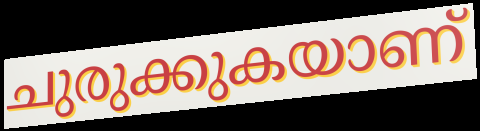
ചുരുക്കുകയാണ്